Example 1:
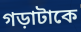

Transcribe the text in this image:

গড়াটাকে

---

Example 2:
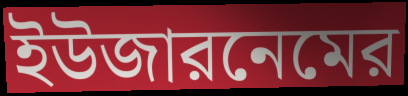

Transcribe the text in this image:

ইউজারনেমের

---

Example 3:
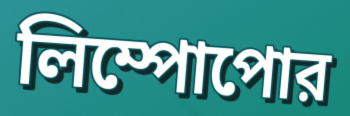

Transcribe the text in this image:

লিম্পোপোর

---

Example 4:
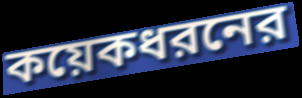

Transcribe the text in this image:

কয়েকধরনের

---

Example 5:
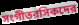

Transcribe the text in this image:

সংগীতরসিকদের